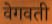
वेगवती